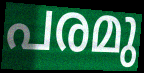
പരമു